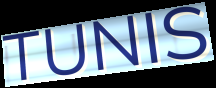
TUNIS